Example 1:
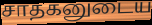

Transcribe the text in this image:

சாதகனுடைய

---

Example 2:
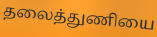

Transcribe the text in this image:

தலைத்துணியை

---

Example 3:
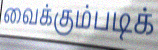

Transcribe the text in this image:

வைக்கும்படிக்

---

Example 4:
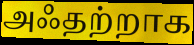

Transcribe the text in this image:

அஃதற்றாக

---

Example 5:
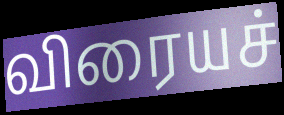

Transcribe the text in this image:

விரையச்